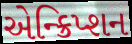
એન્ક્રિપ્શન